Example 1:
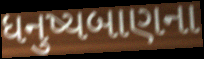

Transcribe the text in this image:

ધનુષ્યબાણના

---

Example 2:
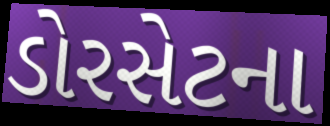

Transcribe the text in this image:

ડોરસેટના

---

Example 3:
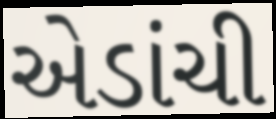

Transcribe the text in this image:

એડાંચી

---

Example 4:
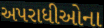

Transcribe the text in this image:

અપરાધીઓના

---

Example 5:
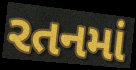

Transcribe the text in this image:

રતનમાં